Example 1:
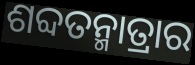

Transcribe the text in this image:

ଶବ୍ଦତନ୍ମାତ୍ରାର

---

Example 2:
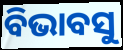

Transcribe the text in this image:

ବିଭାବସୁ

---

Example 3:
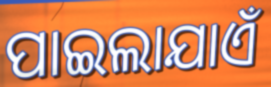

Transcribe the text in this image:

ପାଇଲାଯାଏଁ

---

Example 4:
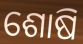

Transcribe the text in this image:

ଶୋଷି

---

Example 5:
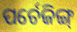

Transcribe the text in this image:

ପର୍ଚେଜିଙ୍ଗ୍